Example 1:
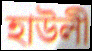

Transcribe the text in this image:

হাউলী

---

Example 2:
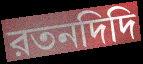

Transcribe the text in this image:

রতনদিদি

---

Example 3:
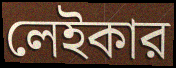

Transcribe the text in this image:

লেইকার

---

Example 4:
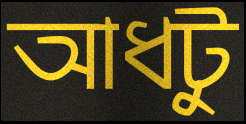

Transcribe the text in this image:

আধটু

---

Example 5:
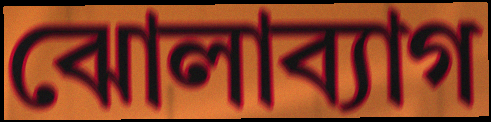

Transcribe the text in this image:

ঝোলাব্যাগ